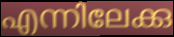
എന്നിലേക്കു